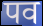
पव